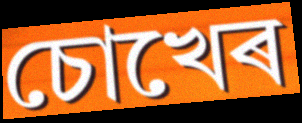
চোখেৰ